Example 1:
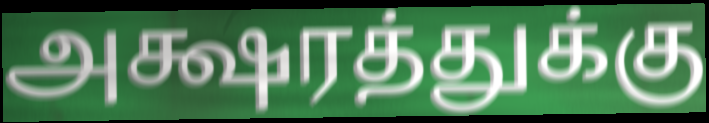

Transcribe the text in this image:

அக்ஷரத்துக்கு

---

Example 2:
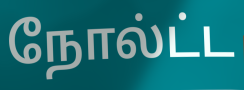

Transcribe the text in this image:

நோல்ட்ட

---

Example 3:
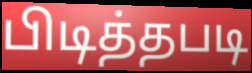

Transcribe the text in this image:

பிடித்தபடி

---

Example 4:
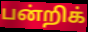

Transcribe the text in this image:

பன்றிக்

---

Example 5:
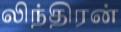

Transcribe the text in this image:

லிந்திரன்